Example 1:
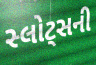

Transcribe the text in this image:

સ્લોટ્સની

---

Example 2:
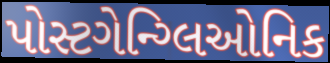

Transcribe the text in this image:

પોસ્ટગેન્ગ્લિઓનિક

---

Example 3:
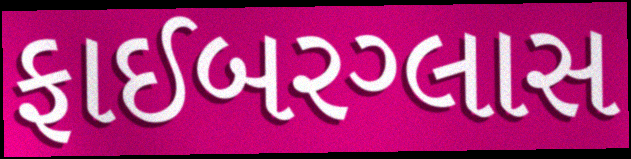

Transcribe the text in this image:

ફાઈબરગ્લાસ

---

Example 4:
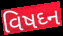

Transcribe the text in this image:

વિષઘ્ન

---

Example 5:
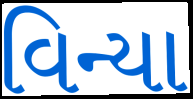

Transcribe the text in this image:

વિન્યા